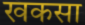
खकसा